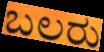
ಬಲರು